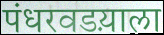
पंधरवडय़ाला